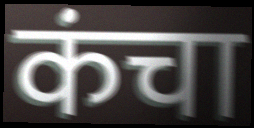
कंचा